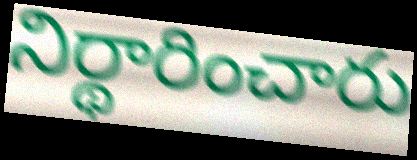
నిర్థారించారు